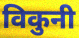
विकुनी